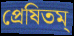
প্রেষিতম্